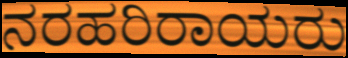
ನರಹರಿರಾಯರು